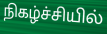
நிகழ்ச்சியில்